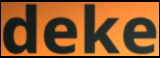
deke